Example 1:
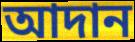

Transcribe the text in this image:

আদান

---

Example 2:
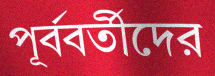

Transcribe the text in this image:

পূর্ববর্তীদের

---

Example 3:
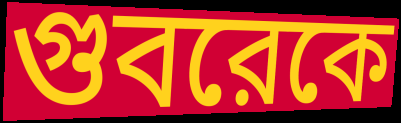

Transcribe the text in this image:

গুবরেকে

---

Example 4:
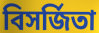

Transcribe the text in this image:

বিসর্জিতা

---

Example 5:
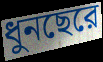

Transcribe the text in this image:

ধুনছেরে